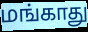
மங்காது